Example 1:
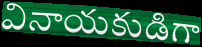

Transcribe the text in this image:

వినాయకుడిగా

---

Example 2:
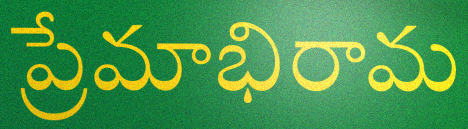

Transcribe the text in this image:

ప్రేమాభిరామ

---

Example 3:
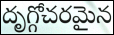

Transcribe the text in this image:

దృగ్గోచరమైన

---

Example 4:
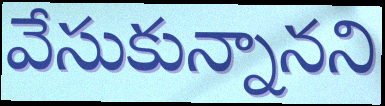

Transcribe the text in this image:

వేసుకున్నానని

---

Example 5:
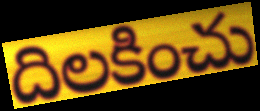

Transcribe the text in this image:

దిలకించు